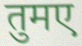
तुमए